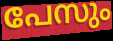
പേസും